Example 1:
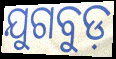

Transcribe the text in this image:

ଯୁଗବୁଡ଼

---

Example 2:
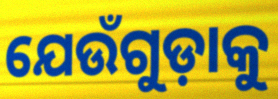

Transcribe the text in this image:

ଯେଉଁଗୁଡ଼ାକୁ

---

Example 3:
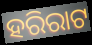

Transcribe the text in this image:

ହରିରାଟ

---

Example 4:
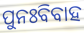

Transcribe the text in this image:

ପୁନଃବିବାହ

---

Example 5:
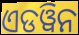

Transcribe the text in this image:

ଏଡୱିନ